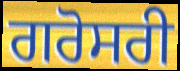
ਗਰੋਸਰੀ